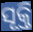
ସୂକ୍ତି